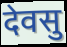
देवसु